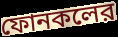
ফোনকলের